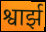
श्वार्झ